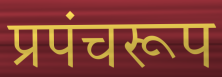
प्रपंचरूप